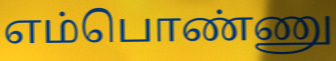
எம்பொண்ணு